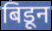
बिडून